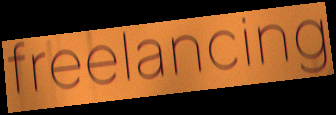
freelancing